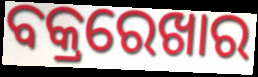
ବକ୍ରରେଖାର